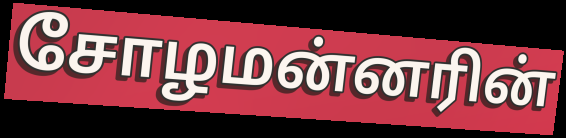
சோழமன்னரின்